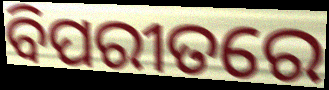
ବିପରୀତରେ